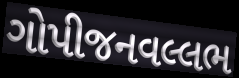
ગોપીજનવલ્લભ